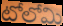
టోలోమి